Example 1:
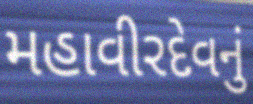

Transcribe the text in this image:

મહાવીરદેવનું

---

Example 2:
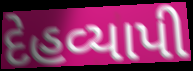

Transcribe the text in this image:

દેહવ્યાપી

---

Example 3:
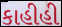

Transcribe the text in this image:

કાહીહી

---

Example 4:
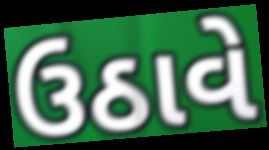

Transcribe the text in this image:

ઉઠાવે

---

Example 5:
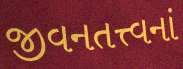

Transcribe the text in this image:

જીવનતત્ત્વનાં